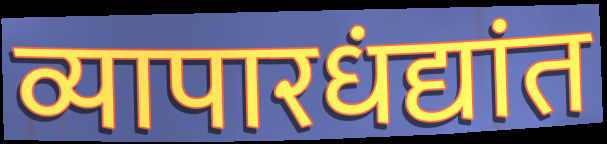
व्यापारधंद्यांत